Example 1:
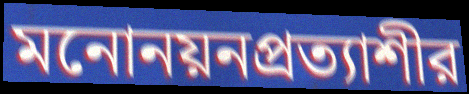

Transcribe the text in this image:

মনোনয়নপ্রত্যাশীর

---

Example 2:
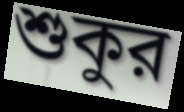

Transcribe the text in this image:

শুকুর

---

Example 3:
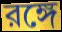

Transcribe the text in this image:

রঙ্গে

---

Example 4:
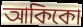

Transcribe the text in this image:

আকিকো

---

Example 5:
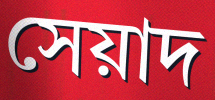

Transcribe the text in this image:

সেয়াদ